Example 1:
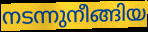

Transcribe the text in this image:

നടന്നുനീങ്ങിയ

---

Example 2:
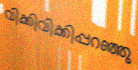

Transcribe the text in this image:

വിക്കിവിക്കിപ്പറഞ്ഞു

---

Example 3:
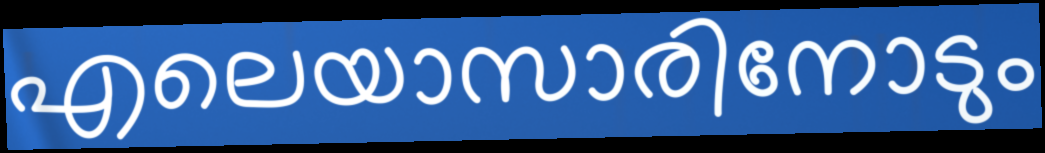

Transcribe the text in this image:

എലെയാസാരിനോടും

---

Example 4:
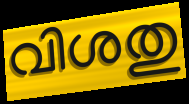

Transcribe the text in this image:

വിശതു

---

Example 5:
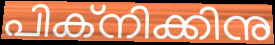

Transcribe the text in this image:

പിക്നിക്കിനു